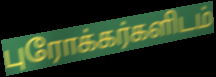
புரோக்கர்களிடம்